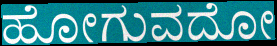
ಹೋಗುವದೋ